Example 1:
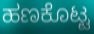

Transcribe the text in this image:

ಹಣಕೊಟ್ಟ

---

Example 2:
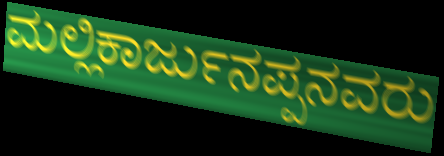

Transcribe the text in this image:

ಮಲ್ಲಿಕಾರ್ಜುನಪ್ಪನವರು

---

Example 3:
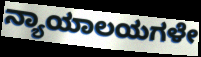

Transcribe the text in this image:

ನ್ಯಾಯಾಲಯಗಳೇ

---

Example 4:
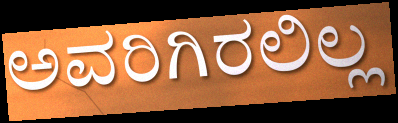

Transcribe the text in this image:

ಅವರಿಗಿರಲಿಲ್ಲ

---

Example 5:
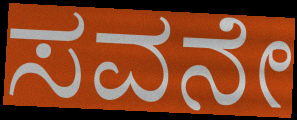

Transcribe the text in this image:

ಸವನೇ